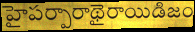
హైపర్పారాథైరాయిడిజం